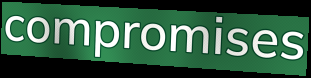
compromises